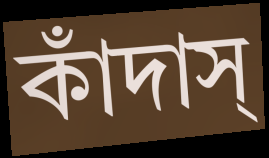
কাঁদাস্